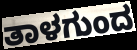
ತಾಳಗುಂದ